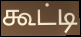
கூட்டி